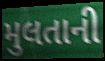
મુલતાની